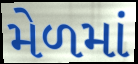
મેળમાં